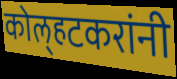
कोल्हटकरांनी